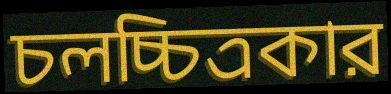
চলচ্চিত্রকার